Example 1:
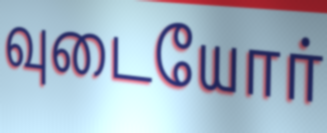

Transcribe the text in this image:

வுடையோர்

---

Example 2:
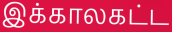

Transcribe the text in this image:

இக்காலகட்ட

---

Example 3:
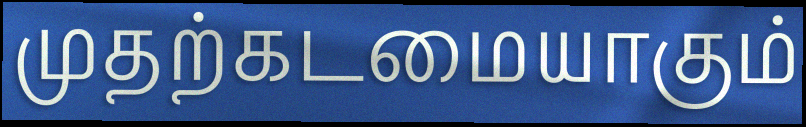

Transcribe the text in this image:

முதற்கடமையாகும்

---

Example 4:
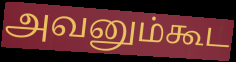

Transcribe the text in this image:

அவனும்கூட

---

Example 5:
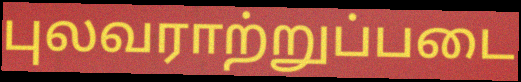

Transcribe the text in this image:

புலவராற்றுப்படை